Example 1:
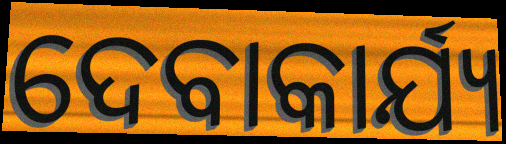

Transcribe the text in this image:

ଦେବାକାର୍ଯ୍ୟ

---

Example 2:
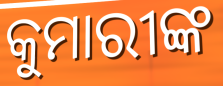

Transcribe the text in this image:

କୁମାରୀଙ୍କ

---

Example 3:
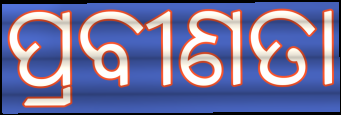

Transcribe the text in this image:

ପ୍ରବୀଣତା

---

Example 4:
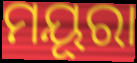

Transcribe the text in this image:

ମୟୂରା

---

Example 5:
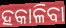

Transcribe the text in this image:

ହକାଳିବା